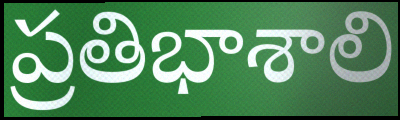
ప్రతిభాశాలి